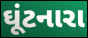
ઘૂંટનારા